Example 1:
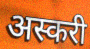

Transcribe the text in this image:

अस्करी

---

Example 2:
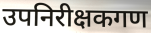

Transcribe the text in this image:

उपनिरीक्षकगण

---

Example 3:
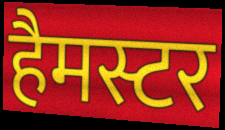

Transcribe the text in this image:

हैमस्टर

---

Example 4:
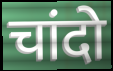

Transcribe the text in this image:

चांदो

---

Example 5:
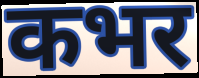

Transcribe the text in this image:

कभर